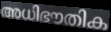
അധിഭൗതിക